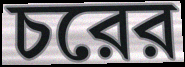
চরের